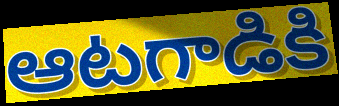
ఆటగాడికి